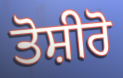
ਤੋਸ਼ੀਰੋ